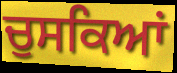
ਚੁਸਕਿਆਂ